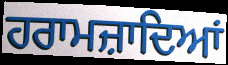
ਹਰਾਮਜ਼ਾਦਿਆਂ